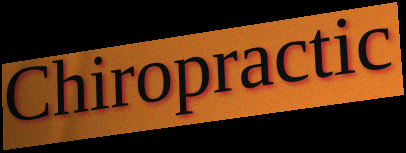
Chiropractic